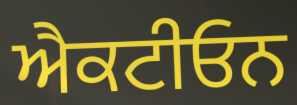
ਐਕਟੀਓਨ